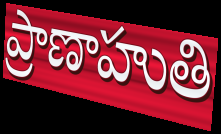
ప్రాణాహుతి